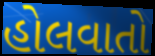
હોલવાતો